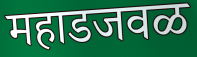
महाडजवळ